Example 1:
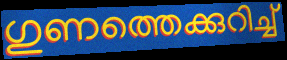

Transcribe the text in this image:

ഗുണത്തെക്കുറിച്ച്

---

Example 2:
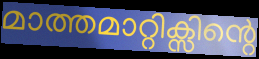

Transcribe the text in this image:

മാത്തമാറ്റിക്സിന്റെ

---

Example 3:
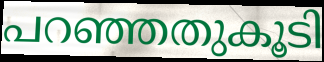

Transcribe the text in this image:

പറഞ്ഞതുകൂടി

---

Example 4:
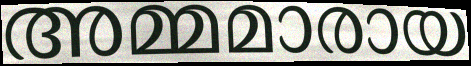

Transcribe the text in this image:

അമ്മമാരായ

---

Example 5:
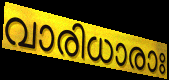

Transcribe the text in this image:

വാരിധാരാഃ